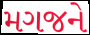
મગજને